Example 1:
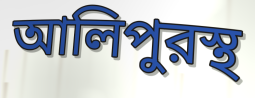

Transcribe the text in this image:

আলিপুরস্থ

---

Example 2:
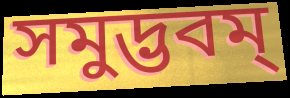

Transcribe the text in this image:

সমুদ্ভবম্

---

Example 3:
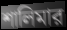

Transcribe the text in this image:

শালিমার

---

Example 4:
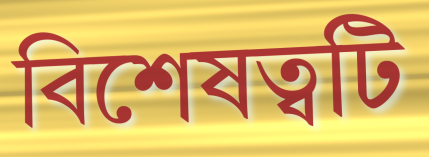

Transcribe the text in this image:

বিশেষত্বটি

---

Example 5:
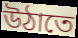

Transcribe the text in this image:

উঠাতে